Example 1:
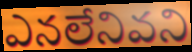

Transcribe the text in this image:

ఎనలేనివని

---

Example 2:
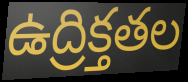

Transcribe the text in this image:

ఉద్రిక్తతల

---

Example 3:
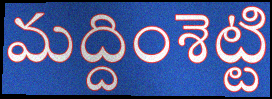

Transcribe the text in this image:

మద్దింశెట్టి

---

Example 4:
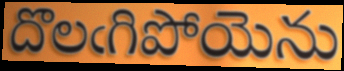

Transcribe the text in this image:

దొలఁగిపోయెను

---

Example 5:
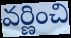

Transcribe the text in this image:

వర్ణించి